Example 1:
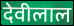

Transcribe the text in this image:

देवीलाल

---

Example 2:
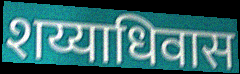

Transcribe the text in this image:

शय्याधिवास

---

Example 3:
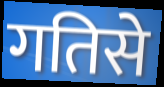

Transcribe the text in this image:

गतिसे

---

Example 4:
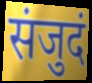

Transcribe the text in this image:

संजुदं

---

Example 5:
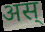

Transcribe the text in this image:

अस्